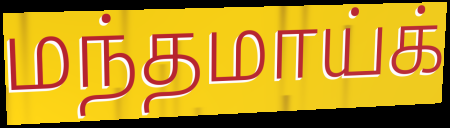
மந்தமாய்க்